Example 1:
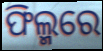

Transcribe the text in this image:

ଫିଲ୍ମରେ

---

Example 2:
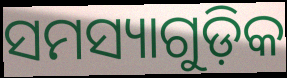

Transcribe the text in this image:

ସମସ୍ୟାଗୁଡ଼ିକ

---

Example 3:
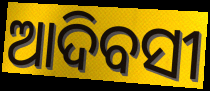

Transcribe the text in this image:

ଆଦିବସୀ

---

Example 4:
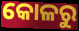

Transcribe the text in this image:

କୋଳରୁ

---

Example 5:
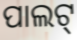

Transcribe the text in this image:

ପାଲଟ୍